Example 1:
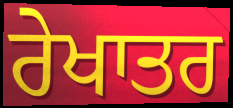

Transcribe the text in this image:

ਰੇਖਾਤਰ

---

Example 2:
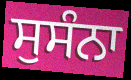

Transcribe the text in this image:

ਸੁਸੰਨਾ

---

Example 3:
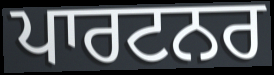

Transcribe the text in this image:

ਪਾਰਟਨਰ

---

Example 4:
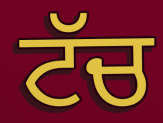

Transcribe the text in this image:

ਟੱਚ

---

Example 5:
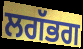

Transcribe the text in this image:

ਲਗੱਭਗ